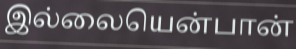
இல்லையென்பான்